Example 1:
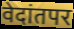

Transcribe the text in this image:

वेदांतपर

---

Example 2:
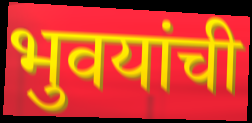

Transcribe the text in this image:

भुवयांची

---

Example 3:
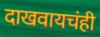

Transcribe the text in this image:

दाखवायचंही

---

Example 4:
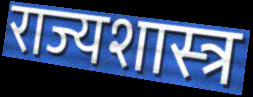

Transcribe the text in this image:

राज्यशास्त्र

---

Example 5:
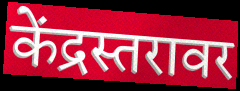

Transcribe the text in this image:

केंद्रस्तरावर